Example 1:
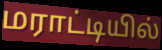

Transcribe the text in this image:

மராட்டியில்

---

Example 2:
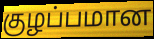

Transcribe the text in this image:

குழப்பமான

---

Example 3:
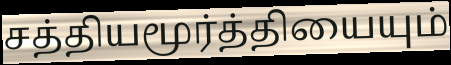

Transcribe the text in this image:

சத்தியமூர்த்தியையும்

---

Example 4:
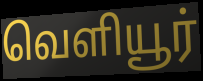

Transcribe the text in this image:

வெளியூர்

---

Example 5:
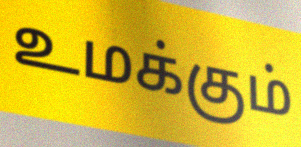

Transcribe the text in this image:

உமக்கும்